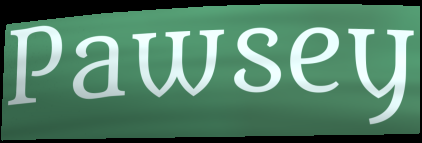
Pawsey